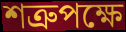
শত্রুপক্ষে